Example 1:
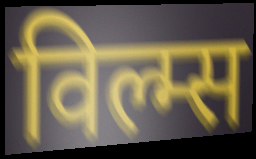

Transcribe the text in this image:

विल्म्स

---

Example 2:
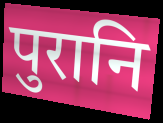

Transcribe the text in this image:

पुरानि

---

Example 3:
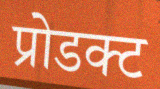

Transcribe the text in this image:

प्रोडक्ट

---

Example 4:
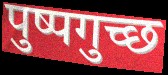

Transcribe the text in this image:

पुष्पगुच्छ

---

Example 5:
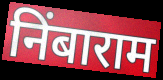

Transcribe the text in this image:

निंबाराम